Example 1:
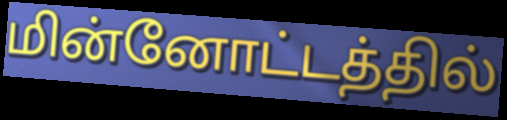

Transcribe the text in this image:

மின்னோட்டத்தில்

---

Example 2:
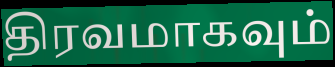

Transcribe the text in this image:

திரவமாகவும்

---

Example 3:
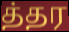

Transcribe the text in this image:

த்தர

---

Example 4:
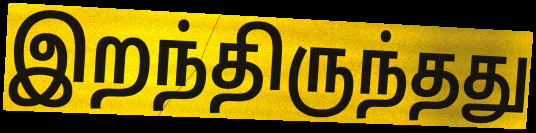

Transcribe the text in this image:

இறந்திருந்தது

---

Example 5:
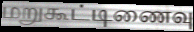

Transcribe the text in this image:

மறுகூட்டிணைவு